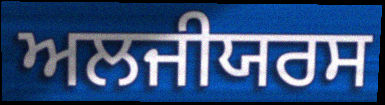
ਅਲਜੀਯਰਸ